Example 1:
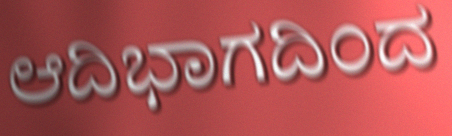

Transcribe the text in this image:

ಆದಿಭಾಗದಿಂದ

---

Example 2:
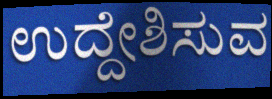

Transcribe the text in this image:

ಉದ್ದೇಶಿಸುವ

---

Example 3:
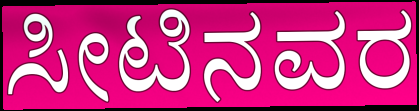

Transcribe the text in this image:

ಸೀಟಿನವರ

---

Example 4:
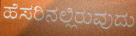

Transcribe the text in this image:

ಹೆಸರಿನಲ್ಲಿರುವುದು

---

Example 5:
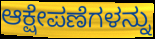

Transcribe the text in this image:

ಆಕ್ಷೇಪಣೆಗಳನ್ನು